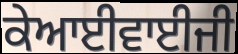
ਕੇਆਈਵਾਈਜੀ